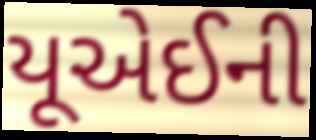
યૂએઈની